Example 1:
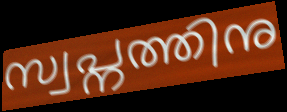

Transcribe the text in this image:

സ്വപ്നത്തിനു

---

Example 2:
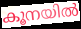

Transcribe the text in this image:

കൂനയിൽ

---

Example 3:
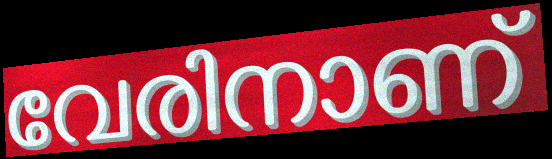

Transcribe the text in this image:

വേരിനാണ്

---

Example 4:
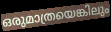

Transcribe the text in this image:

ഒരുമാത്രയെങ്കിലും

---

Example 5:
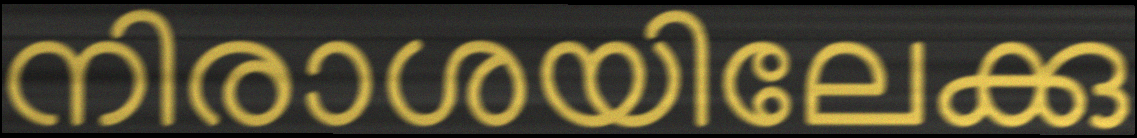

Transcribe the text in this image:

നിരാശയിലേക്കു